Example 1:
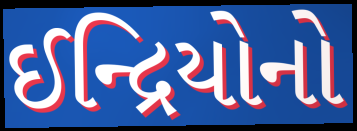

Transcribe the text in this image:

ઈન્દ્રિયોનો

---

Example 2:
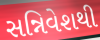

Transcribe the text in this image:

સન્નિવેશથી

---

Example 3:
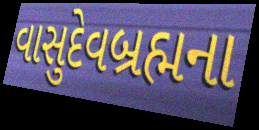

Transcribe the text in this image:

વાસુદેવબ્રહ્મના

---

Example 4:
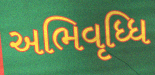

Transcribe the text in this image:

અભિવૃધ્ધિ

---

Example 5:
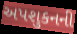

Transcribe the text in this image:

અપશુકનની